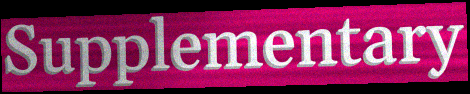
Supplementary